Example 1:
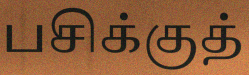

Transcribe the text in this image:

பசிக்குத்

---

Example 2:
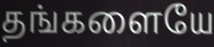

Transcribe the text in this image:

தங்களையே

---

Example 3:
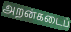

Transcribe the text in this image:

அறன்கடைப்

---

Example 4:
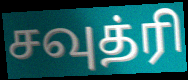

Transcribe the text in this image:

சவுத்ரி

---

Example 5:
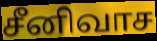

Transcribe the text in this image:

சீனிவாச